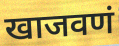
खाजवणं